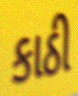
કાઠી